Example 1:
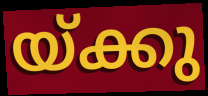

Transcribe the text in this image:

യ്ക്കു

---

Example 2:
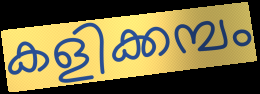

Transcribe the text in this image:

കളിക്കമ്പം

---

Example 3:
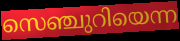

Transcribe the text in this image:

സെഞ്ചുറിയെന്ന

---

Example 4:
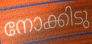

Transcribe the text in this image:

നോക്കിടു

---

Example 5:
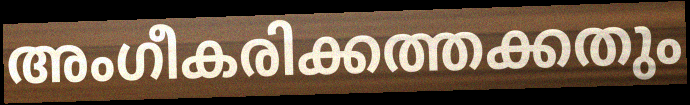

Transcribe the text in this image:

അംഗീകരിക്കത്തക്കതും